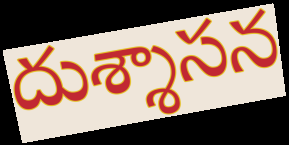
దుశ్శాసన